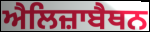
ਐਲਿਜ਼ਾਬੈਥਨ